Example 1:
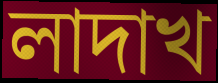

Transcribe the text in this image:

লাদাখ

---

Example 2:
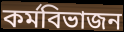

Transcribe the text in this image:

কর্মবিভাজন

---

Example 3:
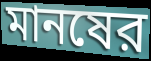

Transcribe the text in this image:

মানষের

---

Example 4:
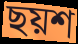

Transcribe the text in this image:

ছয়শ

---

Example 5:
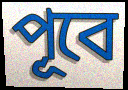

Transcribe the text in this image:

পূবে